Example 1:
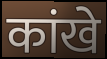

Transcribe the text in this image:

कांखे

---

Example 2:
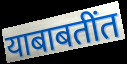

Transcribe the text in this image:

याबाबतींत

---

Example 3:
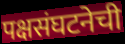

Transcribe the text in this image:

पक्षसंघटनेची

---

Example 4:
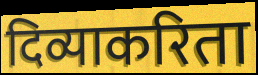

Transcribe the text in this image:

दिव्याकरिता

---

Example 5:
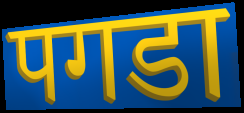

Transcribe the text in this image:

पगडा